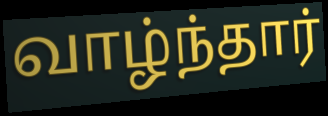
வாழ்ந்தார்